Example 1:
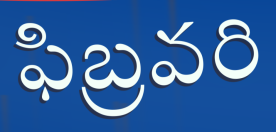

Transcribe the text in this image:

ఫిబ్రవరి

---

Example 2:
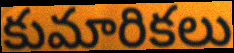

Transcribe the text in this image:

కుమారికలు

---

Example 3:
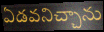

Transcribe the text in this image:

ఏడవనిచ్చాను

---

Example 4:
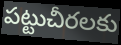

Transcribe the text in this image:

పట్టుచీరలకు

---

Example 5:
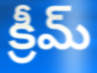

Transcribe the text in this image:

క్రీమ్